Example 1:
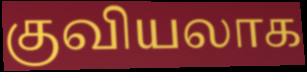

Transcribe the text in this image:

குவியலாக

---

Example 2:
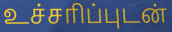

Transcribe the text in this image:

உச்சரிப்புடன்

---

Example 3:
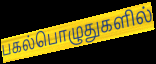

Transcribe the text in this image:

பகல்பொழுதுகளில்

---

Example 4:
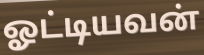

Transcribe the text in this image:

ஓட்டியவன்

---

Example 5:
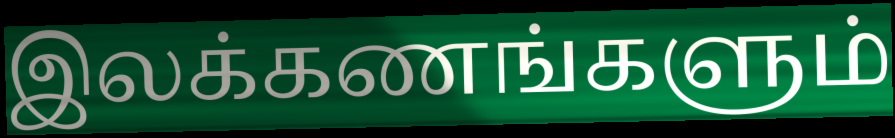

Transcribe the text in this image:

இலக்கணங்களும்